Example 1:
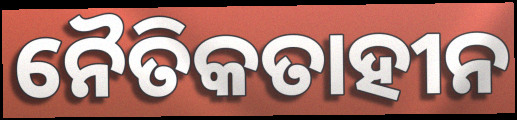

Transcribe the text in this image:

ନୈତିକତାହୀନ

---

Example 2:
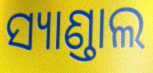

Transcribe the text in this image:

ସ୍ୟାଣ୍ଡାଲ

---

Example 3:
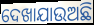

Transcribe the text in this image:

ଦେଖାଯାଉଅଛି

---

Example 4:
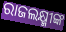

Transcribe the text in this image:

ରାଜଲକ୍ଷ୍ମୀଙ୍କ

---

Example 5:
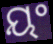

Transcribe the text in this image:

ୟଂ